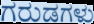
ಗರುಡಗಳು